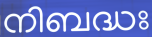
നിബദ്ധഃ